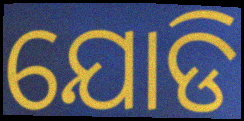
ଯୋଡି